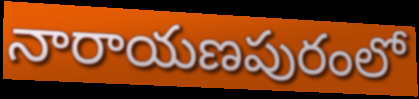
నారాయణపురంలో